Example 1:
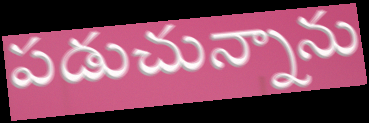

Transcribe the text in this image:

పడుచున్నాను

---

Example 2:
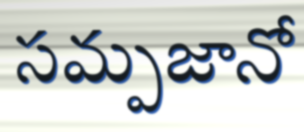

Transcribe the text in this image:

సమ్పజానో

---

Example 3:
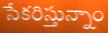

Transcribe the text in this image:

సేకరిస్తున్నాం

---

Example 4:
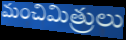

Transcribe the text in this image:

మంచిమిత్రులు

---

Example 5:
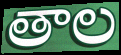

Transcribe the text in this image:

తాల